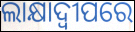
ଲାକ୍ଷାଦ୍ୱୀପରେ